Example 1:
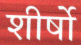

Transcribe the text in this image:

शीर्षो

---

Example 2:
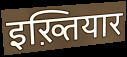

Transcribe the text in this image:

इख़्तियार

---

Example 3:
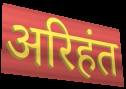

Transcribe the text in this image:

अरिहंत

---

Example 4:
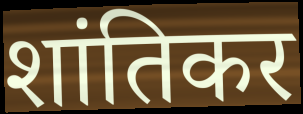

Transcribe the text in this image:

शांतिकर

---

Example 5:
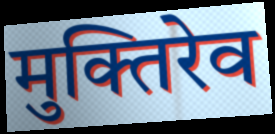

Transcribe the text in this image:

मुक्तिरेव